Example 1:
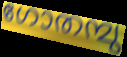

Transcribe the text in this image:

ഗോതമ്പു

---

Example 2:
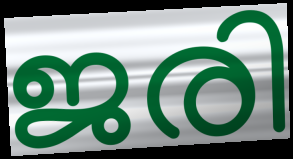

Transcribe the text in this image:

ജരി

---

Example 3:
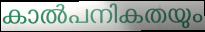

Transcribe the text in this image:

കാൽപനികതയും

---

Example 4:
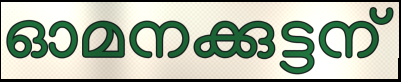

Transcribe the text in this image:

ഓമനക്കുട്ടന്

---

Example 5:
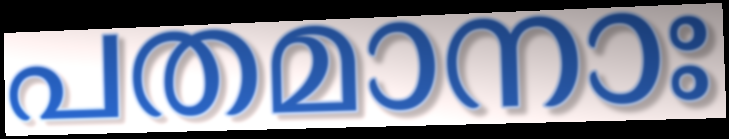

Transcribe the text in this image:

പതമാനാഃ